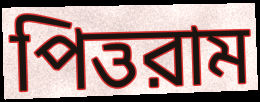
পিত্তরাম